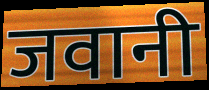
जवानी